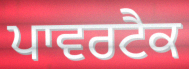
ਪਾਵਰਟੈਕ